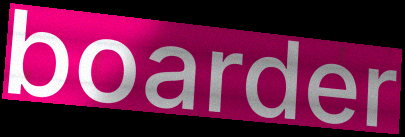
boarder